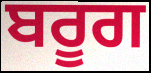
ਬਰੂਗ